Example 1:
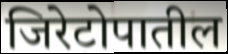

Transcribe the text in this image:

जिरेटोपातील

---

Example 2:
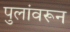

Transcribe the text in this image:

पुलांवरून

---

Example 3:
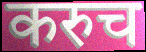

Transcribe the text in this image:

करुच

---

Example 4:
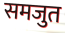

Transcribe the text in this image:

समजुत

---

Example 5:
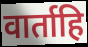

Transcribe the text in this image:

वार्ताहि